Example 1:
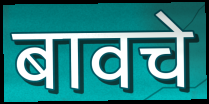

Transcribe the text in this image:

बावचे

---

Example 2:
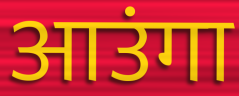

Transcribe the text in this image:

आउंगा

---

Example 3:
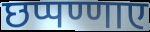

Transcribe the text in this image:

छप्पण्णाए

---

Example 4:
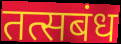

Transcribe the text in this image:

तत्सबंध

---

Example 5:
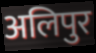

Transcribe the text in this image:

अलिपुर